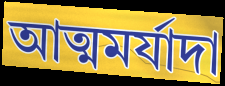
আত্মমর্যাদা